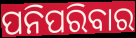
ପନିପରିବାର